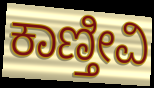
ಕಾಣ್ತೀವಿ